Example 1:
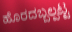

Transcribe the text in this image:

ಹೊರದಬ್ಬಲ್ಪಟ್ಟ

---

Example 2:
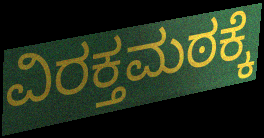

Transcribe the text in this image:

ವಿರಕ್ತಮಠಕ್ಕೆ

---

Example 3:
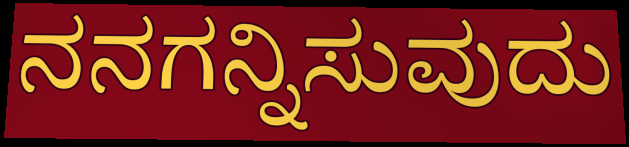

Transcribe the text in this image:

ನನಗನ್ನಿಸುವುದು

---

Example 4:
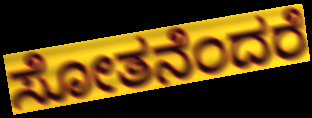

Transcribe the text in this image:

ಸೋತನೆಂದರೆ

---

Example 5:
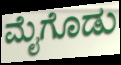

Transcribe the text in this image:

ಮೈಗೊಡು